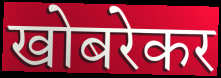
खोबरेकर